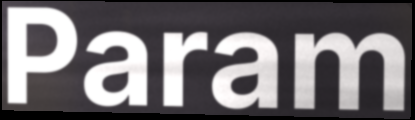
Param